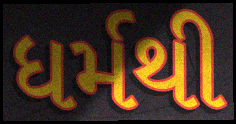
ધર્મથી